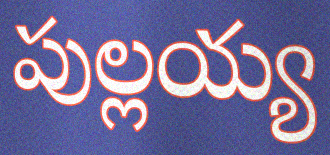
పుల్లయ్య